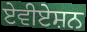
ਏਵੀਏਸ਼ਨ